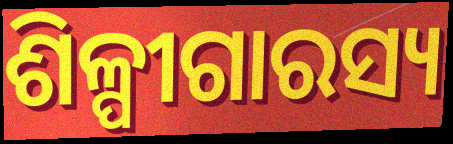
ଶିଳ୍ପୀଗାରସ୍ୟ